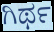
ಗಿರ್ಥ